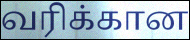
வரிக்கான